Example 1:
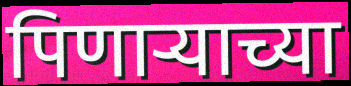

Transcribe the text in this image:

पिणाऱ्याच्या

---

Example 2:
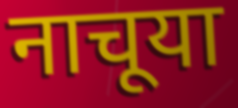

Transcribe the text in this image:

नाचूया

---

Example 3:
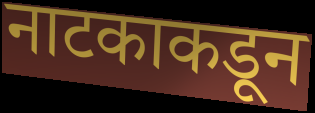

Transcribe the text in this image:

नाटकाकडून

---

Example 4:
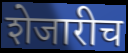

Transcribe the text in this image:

शेजारीच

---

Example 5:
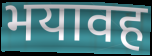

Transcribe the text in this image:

भयावह